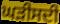
ਘੜੀਸਦੀ